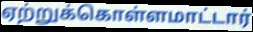
ஏற்றுக்கொள்ளமாட்டார்